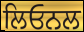
ਲਿਓਨਲ